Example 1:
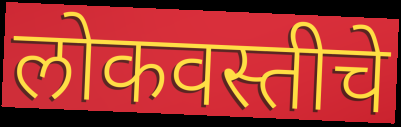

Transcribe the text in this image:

लोकवस्तीचे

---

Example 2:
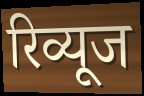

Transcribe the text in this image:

रिव्यूज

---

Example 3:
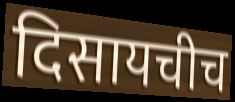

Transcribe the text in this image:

दिसायचीच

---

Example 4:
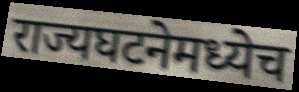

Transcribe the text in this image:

राज्यघटनेमध्येच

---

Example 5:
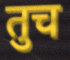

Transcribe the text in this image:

तुच